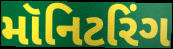
મૉનિટરિંગ